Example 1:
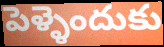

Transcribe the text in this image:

పెళ్ళెందుకు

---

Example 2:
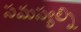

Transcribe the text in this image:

సమస్యల్ని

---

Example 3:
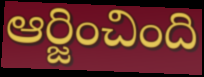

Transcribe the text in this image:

ఆర్జించింది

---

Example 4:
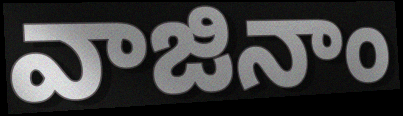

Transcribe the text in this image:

వాజినాం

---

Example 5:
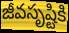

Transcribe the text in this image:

జీవసృష్టికి